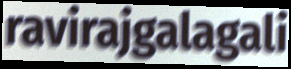
ravirajgalagali